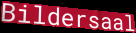
Bildersaal